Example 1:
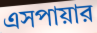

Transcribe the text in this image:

এসপায়ার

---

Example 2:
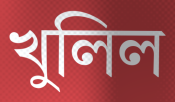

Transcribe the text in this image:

খুলিল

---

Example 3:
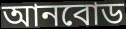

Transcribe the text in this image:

আনবোড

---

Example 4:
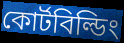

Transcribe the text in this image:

কোর্টবিল্ডিং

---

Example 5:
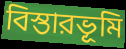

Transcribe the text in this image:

বিস্তারভূমি